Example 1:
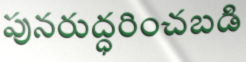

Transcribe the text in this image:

పునరుద్ధరించబడి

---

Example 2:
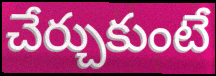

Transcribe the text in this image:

చేర్చుకుంటే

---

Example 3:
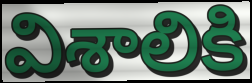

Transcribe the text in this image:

విశాలికి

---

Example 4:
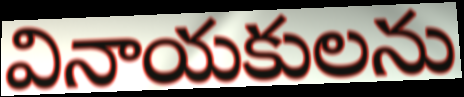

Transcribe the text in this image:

వినాయకులను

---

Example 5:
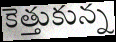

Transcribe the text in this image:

కెత్తుకున్న